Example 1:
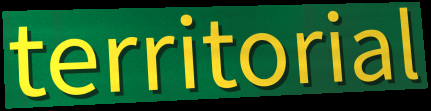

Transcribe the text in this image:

territorial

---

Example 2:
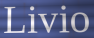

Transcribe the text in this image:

Livio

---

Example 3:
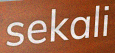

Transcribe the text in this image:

sekali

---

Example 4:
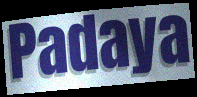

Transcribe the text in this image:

Padaya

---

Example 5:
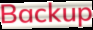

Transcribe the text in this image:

Backup